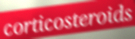
corticosteroids